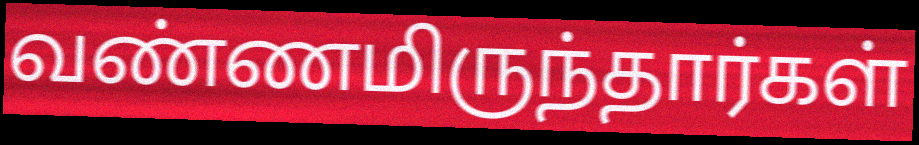
வண்ணமிருந்தார்கள்